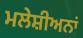
ਮਲੇਸ਼ੀਅਨਾਂ